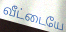
வீட்டையே